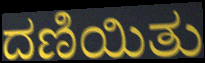
ದಣಿಯಿತು